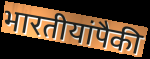
भारतीयांपैकी